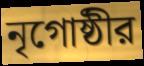
নৃগোষ্ঠীর